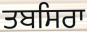
ਤਬਸਿਰਾ